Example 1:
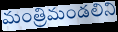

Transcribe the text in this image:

మంత్రిమండలిని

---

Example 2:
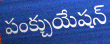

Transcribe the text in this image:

పంక్చుయేషన్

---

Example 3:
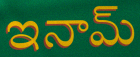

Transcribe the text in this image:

ఇనామ్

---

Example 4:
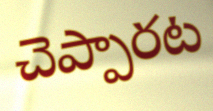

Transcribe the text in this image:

చెప్పారట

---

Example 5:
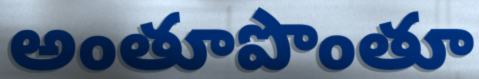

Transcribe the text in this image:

అంతూపొంతూ